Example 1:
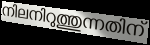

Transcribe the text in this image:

നിലനിറുത്തുന്നതിന്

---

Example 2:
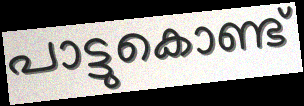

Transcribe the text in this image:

പാട്ടുകൊണ്ട്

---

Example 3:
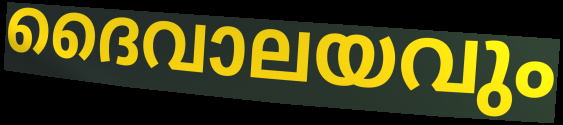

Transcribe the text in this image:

ദൈവാലയവും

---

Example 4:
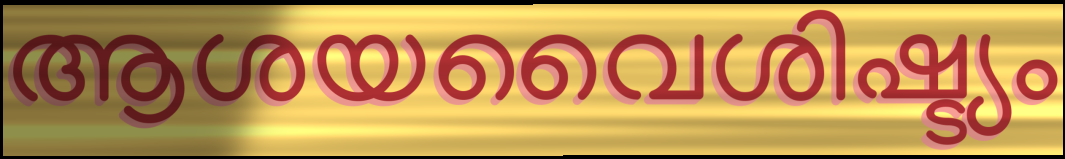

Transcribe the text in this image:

ആശയവൈശിഷ്ട്യം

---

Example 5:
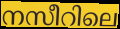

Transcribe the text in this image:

നസീറിലെ